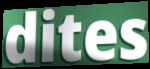
dites